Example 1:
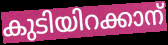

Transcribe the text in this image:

കുടിയിറക്കാന്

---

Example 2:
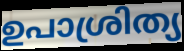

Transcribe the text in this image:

ഉപാശ്രിത്യ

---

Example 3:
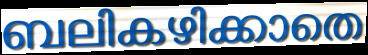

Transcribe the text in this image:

ബലികഴിക്കാതെ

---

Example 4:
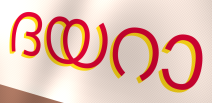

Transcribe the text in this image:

ദയറാ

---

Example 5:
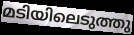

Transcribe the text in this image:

മടിയിലെടുത്തു